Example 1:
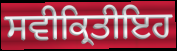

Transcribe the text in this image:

ਸਵੀਕ੍ਰਿਤੀਇਹ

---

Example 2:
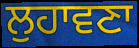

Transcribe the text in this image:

ਲੁਹਾਵਣਾ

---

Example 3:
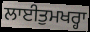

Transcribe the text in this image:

ਲਾਈਤੁਮਖਰ੍ਹਾ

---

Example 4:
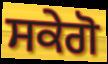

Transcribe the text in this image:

ਸਕੇਗੋ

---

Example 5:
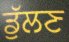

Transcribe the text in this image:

ਡੁੱਲਣ